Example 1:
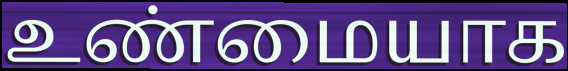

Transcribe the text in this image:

உண்மையாக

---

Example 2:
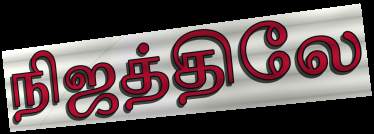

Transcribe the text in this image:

நிஜத்திலே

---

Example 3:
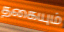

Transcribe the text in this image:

தகையும்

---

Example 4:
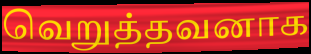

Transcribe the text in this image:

வெறுத்தவனாக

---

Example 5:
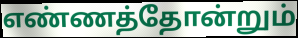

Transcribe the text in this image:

எண்ணத்தோன்றும்